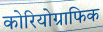
कोरियोग्राफिक